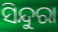
ସିନ୍ଦୁରା